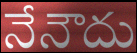
నేనౌదు